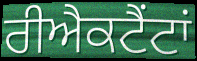
ਰੀਐਕਟੈਂਟਾਂ